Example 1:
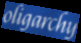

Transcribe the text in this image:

oligarchy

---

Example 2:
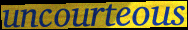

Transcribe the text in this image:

uncourteous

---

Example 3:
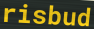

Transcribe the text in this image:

risbud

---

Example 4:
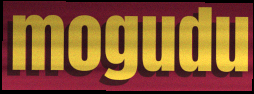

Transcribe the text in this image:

mogudu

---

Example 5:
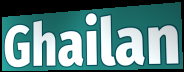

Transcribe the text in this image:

Ghailan